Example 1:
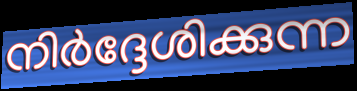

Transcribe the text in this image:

നിർദ്ദേശിക്കുന്ന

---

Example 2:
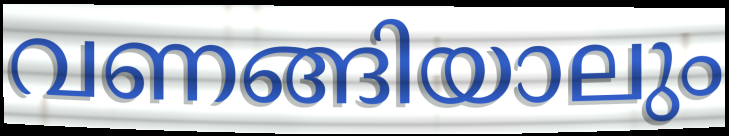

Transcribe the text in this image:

വണങ്ങിയാലും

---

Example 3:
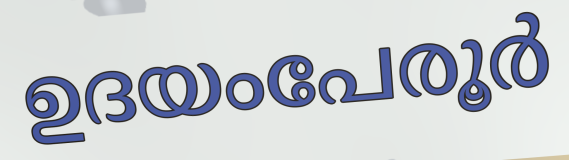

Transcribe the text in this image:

ഉദയംപേരൂർ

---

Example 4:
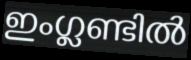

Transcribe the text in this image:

ഇംഗ്ലണ്ടിൽ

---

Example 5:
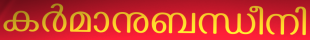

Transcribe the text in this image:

കർമാനുബന്ധീനി